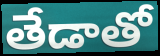
తేడాతో